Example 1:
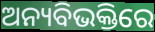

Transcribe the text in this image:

ଅନ୍ୟବିଭକ୍ତିରେ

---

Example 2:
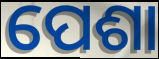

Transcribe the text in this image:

ପେଶା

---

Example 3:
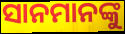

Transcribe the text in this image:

ସାନମାନଙ୍କୁ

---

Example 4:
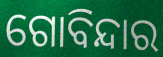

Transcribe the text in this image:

ଗୋବିନ୍ଦାର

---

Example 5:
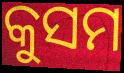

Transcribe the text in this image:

କୁସମ